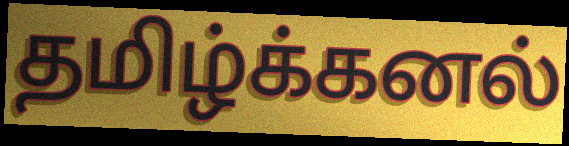
தமிழ்க்கனல்